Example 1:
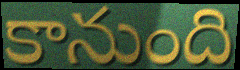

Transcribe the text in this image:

కానుంది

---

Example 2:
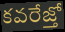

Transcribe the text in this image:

కవరేజ్తో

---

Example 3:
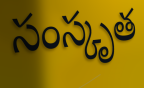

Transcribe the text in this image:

సంస్కృత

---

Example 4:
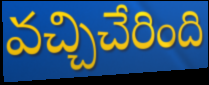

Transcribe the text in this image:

వచ్చిచేరింది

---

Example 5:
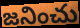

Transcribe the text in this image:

జనించు